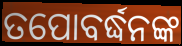
ତପୋବର୍ଦ୍ଧନଙ୍କ